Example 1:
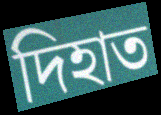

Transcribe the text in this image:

দিহাত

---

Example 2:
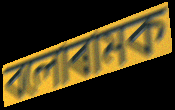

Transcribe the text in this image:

বলোৰামক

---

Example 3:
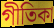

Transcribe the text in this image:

গীতিকা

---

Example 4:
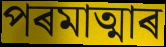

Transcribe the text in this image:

পৰমাত্মাৰ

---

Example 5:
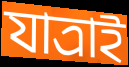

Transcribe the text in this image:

যাত্ৰাই